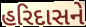
હરિદાસને